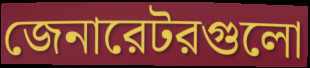
জেনারেটরগুলো